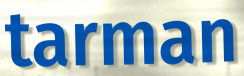
tarman